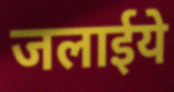
जलाईये